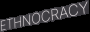
ETHNOCRACY